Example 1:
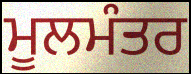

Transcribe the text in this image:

ਮੂਲਮੰਤਰ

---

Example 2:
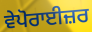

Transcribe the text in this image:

ਵੇਪੋਰਾਈਜ਼ਰ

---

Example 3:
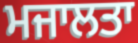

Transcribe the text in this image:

ਮਜਾਲਤਾ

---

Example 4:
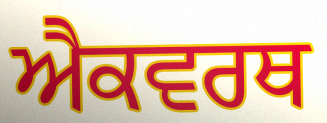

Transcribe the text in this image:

ਐਕਵਰਥ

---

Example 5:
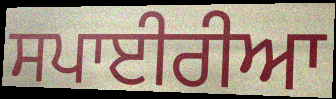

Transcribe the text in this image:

ਸਪਾਈਰੀਆ